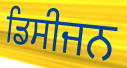
ਡਿਸੀਜਨ